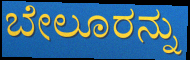
ಬೇಲೂರನ್ನು